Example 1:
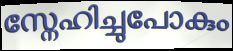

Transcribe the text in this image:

സ്നേഹിച്ചുപോകും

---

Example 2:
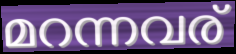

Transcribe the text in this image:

മറന്നവര്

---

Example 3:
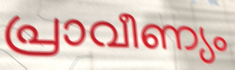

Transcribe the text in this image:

പ്രാവീണ്യം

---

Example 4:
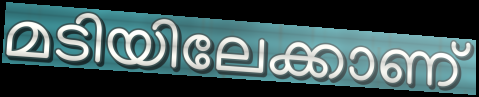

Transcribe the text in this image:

മടിയിലേക്കാണ്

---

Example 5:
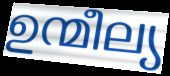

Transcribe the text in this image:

ഉന്മീല്യ